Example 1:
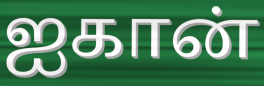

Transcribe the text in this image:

ஐகான்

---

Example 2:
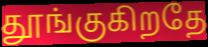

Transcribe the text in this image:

தூங்குகிறதே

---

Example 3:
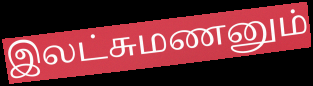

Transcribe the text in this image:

இலட்சுமணனும்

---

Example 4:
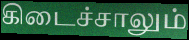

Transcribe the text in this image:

கிடைச்சாலும்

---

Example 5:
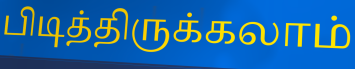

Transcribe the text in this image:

பிடித்திருக்கலாம்